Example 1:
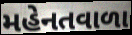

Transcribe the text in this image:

મહેનતવાળા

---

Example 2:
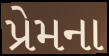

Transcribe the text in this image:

પ્રેમના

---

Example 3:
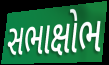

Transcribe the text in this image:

સભાક્ષોભ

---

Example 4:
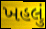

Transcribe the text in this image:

ખહલું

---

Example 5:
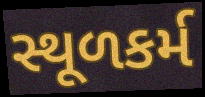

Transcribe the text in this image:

સ્થૂળકર્મ